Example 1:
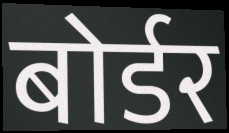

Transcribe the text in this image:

बोर्डर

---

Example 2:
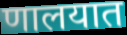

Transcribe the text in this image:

णालयात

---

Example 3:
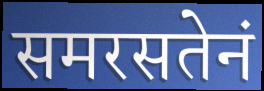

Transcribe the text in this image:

समरसतेनं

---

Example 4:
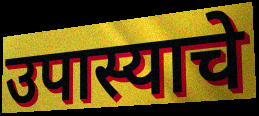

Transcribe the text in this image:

उपास्याचे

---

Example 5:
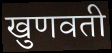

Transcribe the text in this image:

खुणवती